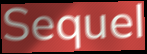
Sequel